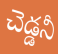
చెడ్డనీ